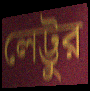
লেট্টুর